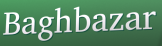
Baghbazar